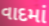
વાદમાં